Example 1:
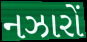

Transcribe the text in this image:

નઝારોં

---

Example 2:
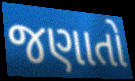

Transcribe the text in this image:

જણાતો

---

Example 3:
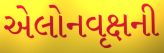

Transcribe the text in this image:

એલોનવૃક્ષની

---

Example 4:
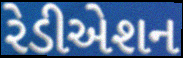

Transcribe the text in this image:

રેડીએશન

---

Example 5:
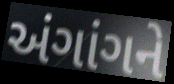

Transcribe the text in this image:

અંગાંગને